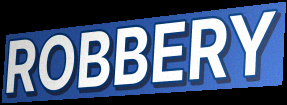
ROBBERY